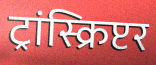
ट्रांस्क्रिप्टर